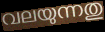
വലയുന്നതു